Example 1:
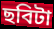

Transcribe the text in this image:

ছবিটা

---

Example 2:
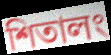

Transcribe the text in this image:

শিতালং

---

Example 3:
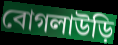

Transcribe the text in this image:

বোগলাউড়ি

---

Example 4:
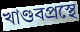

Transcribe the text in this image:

খাণ্ডবপ্রস্থে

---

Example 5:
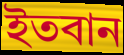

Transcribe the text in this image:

ইতবান